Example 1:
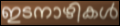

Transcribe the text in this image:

ഇടനാഴികൾ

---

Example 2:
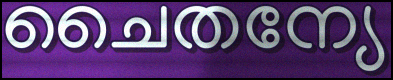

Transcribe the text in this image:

ചൈതന്യേ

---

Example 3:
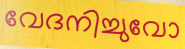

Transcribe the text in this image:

വേദനിച്ചുവോ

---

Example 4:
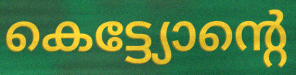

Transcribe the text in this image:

കെട്ട്യോന്റെ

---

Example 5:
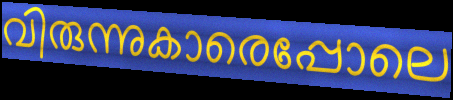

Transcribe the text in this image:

വിരുന്നുകാരെപ്പോലെ